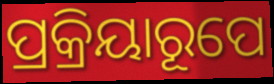
ପ୍ରକ୍ରିୟାରୂପେ